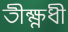
তীক্ষ্ণধী